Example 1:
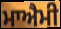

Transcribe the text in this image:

ਮਾਐਮੀ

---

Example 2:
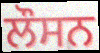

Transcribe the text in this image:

ਲੌਸਨ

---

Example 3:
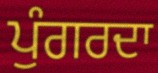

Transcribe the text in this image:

ਪੁੰਗਰਦਾ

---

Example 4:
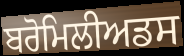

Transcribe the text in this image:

ਬਰੋਮਿਲੀਅਡਸ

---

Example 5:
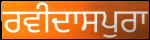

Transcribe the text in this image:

ਰਵੀਦਾਸਪੁਰਾ